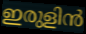
ഇരുളിൻ